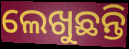
ଲେଖୁଛନ୍ତି